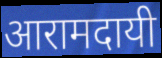
आरामदायी